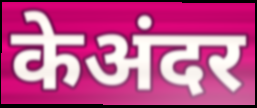
केअंदर